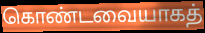
கொண்டவையாகத்